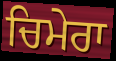
ਚਿਮੇਰਾ